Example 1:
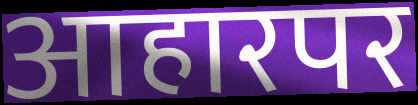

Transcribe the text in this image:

आहारपर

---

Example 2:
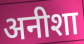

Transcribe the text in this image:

अनीशा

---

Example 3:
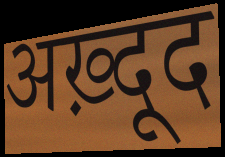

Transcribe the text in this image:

अख़्दूद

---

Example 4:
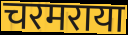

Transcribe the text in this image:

चरमराया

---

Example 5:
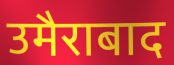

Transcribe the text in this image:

उमैराबाद